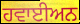
ਹਵਾਈਅਨ